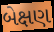
બેક્ષણ